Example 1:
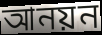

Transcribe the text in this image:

আনয়ন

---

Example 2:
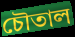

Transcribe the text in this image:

চৌতাল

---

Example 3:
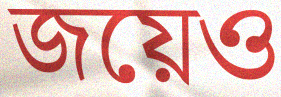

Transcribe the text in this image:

জয়েও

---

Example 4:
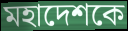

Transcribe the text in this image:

মহাদেশকে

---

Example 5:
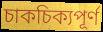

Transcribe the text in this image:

চাকচিক্যপূর্ণ